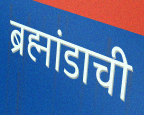
ब्रह्मांडाची